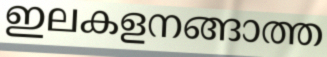
ഇലകളനങ്ങാത്ത